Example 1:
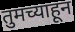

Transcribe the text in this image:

तुमच्याहून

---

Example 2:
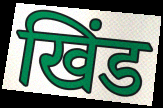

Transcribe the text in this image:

खिंड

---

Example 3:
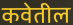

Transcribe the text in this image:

कवेतील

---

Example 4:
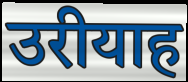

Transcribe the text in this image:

उरीयाह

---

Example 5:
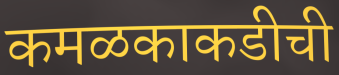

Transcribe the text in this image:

कमळकाकडीची